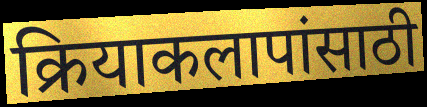
क्रियाकलापांसाठी